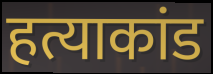
हत्याकांड